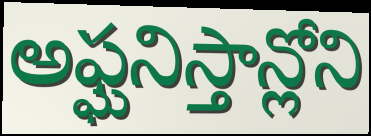
అఫ్ఘనిస్తాన్లోని